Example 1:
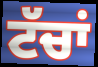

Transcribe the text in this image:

ਟੱਚਾਂ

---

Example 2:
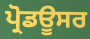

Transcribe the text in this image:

ਪ੍ਰੋਡਊਸਰ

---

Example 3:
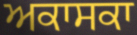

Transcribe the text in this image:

ਅਕਾਸਕਾ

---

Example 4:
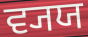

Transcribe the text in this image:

ਵ੍ਯਯ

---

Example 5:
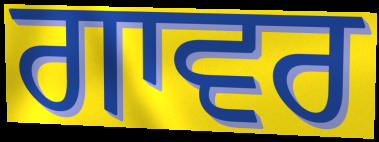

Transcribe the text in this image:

ਗਾਵਰ